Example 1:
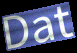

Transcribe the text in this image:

Dat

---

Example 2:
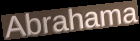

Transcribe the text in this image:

Abrahama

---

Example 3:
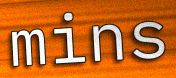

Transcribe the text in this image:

mins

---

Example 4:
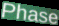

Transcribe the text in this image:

Phase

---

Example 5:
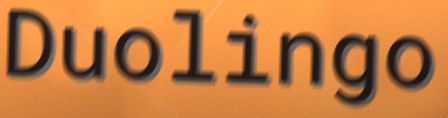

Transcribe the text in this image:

Duolingo